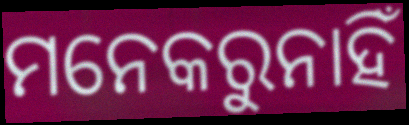
ମନେକରୁନାହିଁ